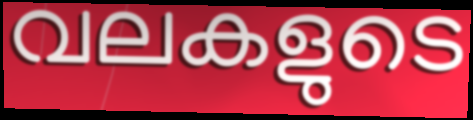
വലകളുടെ